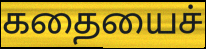
கதையைச்